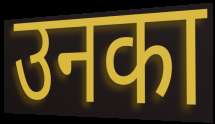
उनका